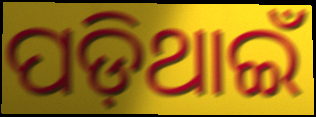
ପଡ଼ିଥାଇଁ